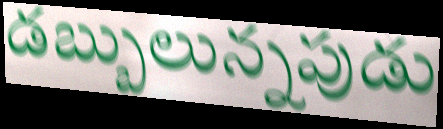
డబ్బులున్నపుడు